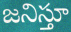
జనిస్తూ